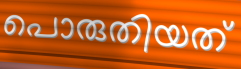
പൊരുതിയത്